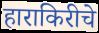
हाराकिरीचे